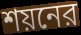
শয়নের